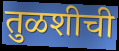
तुळशीची